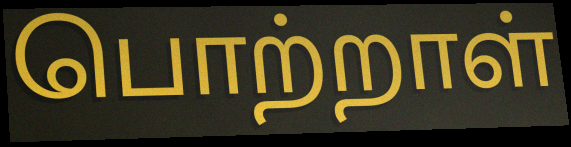
பொற்றாள்